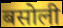
बसोली